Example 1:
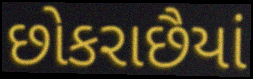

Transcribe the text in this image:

છોકરાછૈયાં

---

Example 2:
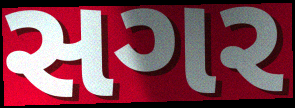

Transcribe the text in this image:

સગર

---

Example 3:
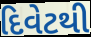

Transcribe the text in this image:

દિવેટથી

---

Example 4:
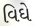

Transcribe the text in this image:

વિઘે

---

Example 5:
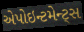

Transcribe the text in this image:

એપોઇન્ટમેન્ટ્સ